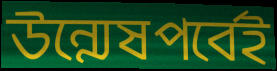
উন্মেষপর্বেই